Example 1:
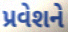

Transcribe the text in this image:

પ્રવેશને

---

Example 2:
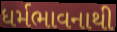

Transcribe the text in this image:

ધર્મભાવનાથી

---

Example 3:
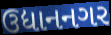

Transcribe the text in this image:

ઉદ્યાનનગર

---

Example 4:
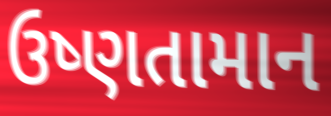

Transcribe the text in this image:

ઉષ્ણતામાન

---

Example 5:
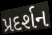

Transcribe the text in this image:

પ્રદર્શન